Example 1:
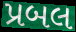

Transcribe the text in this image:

પ્રબલ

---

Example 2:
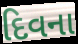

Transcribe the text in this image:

દિવના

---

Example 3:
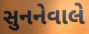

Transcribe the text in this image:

સુનનેવાલે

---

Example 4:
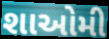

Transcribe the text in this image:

શાઓમી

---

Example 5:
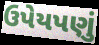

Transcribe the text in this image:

ઉપેયપણું